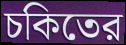
চকিতের